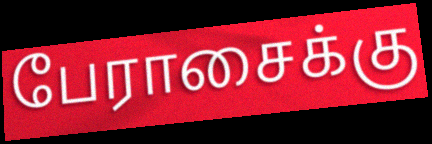
பேராசைக்கு